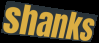
shanks